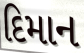
દિમાન